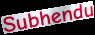
Subhendu